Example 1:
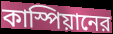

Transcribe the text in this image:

কাস্পিয়ানের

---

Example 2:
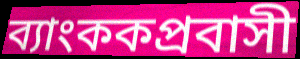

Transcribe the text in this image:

ব্যাংককপ্রবাসী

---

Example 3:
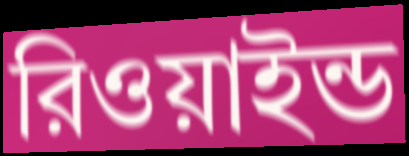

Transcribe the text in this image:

রিওয়াইন্ড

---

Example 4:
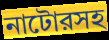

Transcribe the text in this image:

নাটোরসহ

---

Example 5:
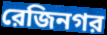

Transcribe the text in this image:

রেজিনগর